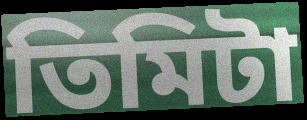
তিমিটা